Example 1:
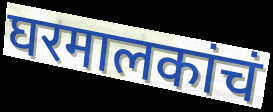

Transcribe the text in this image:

घरमालकांचं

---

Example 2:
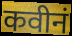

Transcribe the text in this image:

कवीनं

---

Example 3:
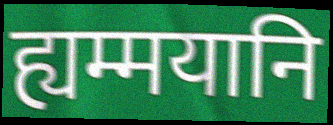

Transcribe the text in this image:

ह्यम्मयानि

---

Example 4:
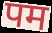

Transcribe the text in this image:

पम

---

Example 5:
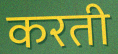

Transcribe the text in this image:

करती